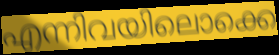
എന്നിവയിലൊക്കെ